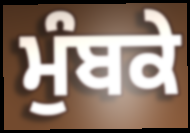
ਮੁੰਬਕੇ